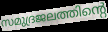
സമുദ്രജലത്തിന്റെ